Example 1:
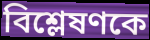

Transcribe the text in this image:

বিশ্লেষণকে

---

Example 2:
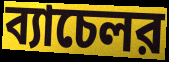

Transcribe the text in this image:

ব্যাচেলর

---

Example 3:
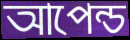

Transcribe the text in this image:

আপেন্ড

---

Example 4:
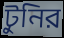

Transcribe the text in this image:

টুনির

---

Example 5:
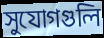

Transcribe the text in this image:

সুযোগগুলি